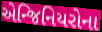
એન્જિનિયરોના